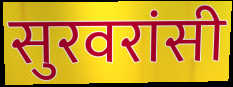
सुरवरांसी